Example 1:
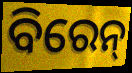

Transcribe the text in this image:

ବିରେନ୍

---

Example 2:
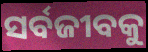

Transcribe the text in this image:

ସର୍ବଜୀବକୁ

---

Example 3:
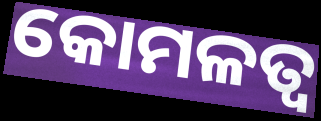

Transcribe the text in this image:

କୋମଳତ୍ୱ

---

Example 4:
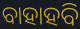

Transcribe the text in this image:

ବାହାହବି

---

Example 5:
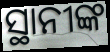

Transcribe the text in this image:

ସ୍ଥାନୀଙ୍କ